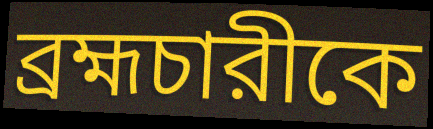
ব্রহ্মচারীকে